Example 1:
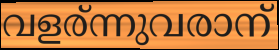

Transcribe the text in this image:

വളര്ന്നുവരാന്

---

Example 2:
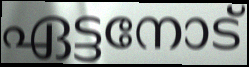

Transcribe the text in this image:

ഏട്ടനോട്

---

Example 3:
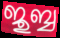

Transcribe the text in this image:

ജുബ്ബ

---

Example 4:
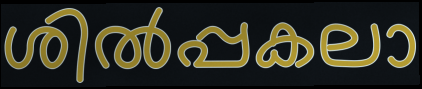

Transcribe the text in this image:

ശിൽപ്പകലാ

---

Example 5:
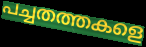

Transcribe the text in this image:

പച്ചതത്തകളെ